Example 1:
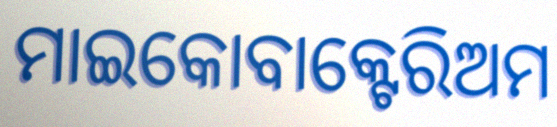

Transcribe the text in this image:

ମାଇକୋବାକ୍ଟେରିଅମ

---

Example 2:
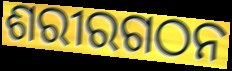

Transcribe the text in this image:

ଶରୀରଗଠନ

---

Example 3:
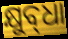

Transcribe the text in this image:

କ୍ଷୁବ୍‌ଧା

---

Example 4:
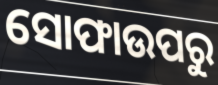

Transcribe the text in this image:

ସୋଫାଉପରୁ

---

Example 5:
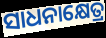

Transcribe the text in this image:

ସାଧନାକ୍ଷେତ୍ର